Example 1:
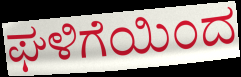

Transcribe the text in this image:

ಘಳಿಗೆಯಿಂದ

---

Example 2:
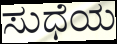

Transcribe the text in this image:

ಸುಧೆಯ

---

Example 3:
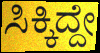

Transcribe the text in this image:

ಸಿಕ್ಕಿದ್ದೇ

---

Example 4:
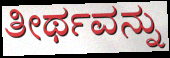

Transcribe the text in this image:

ತೀರ್ಥವನ್ನು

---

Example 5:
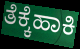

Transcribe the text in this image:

ತೆಕ್ಕೆಹಾಕಿ